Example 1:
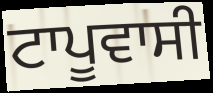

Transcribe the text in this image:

ਟਾਪੂਵਾਸੀ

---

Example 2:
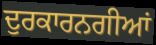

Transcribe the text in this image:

ਦੁਰਕਾਰਨਗੀਆਂ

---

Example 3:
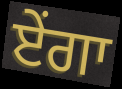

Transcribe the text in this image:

ਏਂਗਾ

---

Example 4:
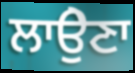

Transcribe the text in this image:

ਲਾਉੇਣਾ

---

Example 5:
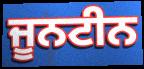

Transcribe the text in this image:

ਜੂਨਟੀਨ